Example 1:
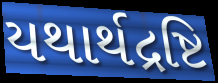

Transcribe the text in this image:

યથાર્થદ્રષ્ટિ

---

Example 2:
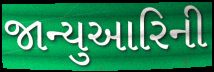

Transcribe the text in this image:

જાન્યુઆરિની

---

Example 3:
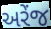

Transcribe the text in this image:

અરેંજ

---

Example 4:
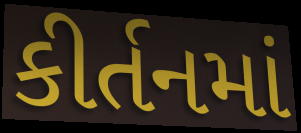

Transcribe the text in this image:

કીર્તનમાં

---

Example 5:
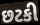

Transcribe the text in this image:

છટકી